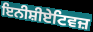
ਇਨੀਸ਼ੀਏਟਿਵਜ਼